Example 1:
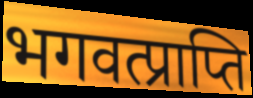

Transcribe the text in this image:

भगवत्प्राप्ति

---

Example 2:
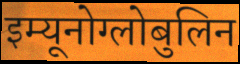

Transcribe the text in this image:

इम्यूनोग्लोबुलिन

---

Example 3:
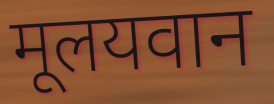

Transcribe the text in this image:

मूलयवान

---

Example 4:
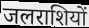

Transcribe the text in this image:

जलराशियों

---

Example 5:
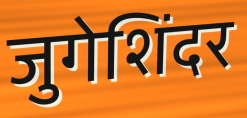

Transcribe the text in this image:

जुगेशिंदर